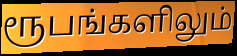
ரூபங்களிலும்